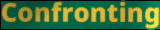
Confronting